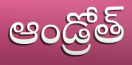
ఆండ్రోత్